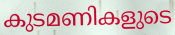
കുടമണികളുടെ